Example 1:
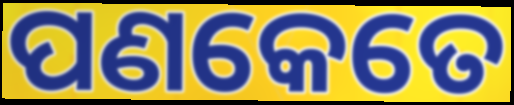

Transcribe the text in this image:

ପଣକେତେ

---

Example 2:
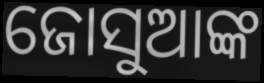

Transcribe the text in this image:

ଜୋସୁଆଙ୍କ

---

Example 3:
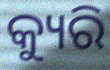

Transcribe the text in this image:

କ୍ୟୁରି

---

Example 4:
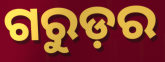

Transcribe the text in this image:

ଗରୁଡ଼ର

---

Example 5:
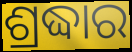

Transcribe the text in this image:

ଶ୍ରଦ୍ଧାର